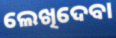
ଲେଖିଦେବା